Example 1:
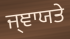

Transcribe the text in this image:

ਜ੍ਞਾਯਤੇ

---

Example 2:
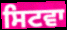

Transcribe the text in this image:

ਸਿਟਵਾ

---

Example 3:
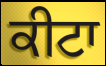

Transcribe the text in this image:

ਕੀਟਾ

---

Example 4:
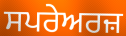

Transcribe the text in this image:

ਸਪਰੇਅਰਜ਼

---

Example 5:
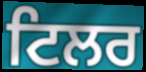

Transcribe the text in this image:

ਟਿਲਰ